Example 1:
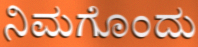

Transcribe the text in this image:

ನಿಮಗೊಂದು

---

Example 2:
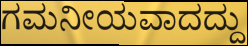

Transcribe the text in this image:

ಗಮನೀಯವಾದದ್ದು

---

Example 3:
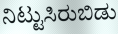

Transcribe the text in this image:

ನಿಟ್ಟುಸಿರುಬಿಡು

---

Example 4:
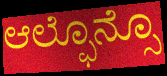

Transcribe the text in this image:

ಆಲ್ಫೊನ್ಸೊ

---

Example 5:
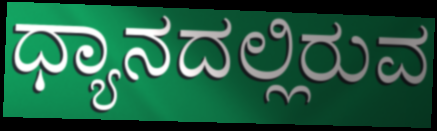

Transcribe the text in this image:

ಧ್ಯಾನದಲ್ಲಿರುವ